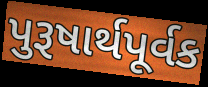
પુરૂષાર્થપૂર્વક